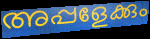
അപ്പളേക്കും